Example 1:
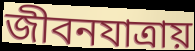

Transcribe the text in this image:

জীবনযাত্রায়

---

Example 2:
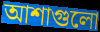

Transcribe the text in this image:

আশাগুলো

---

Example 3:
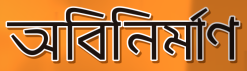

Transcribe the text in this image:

অবিনির্মাণ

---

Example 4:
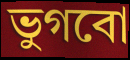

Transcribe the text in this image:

ভুগবো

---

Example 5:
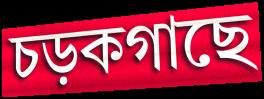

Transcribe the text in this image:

চড়কগাছে